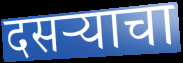
दसऱ्याचा